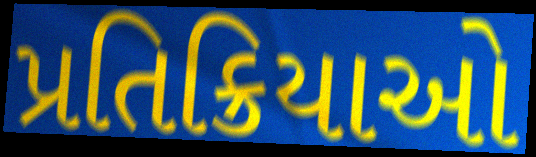
પ્રતિક્રિયાઓ